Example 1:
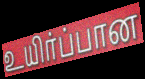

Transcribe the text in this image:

உயிர்ப்பான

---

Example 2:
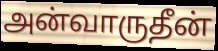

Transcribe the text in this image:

அன்வாருதீன்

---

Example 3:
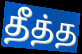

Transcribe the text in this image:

தீத்த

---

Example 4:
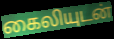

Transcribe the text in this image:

கைலியுடன்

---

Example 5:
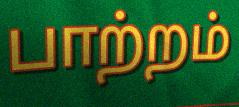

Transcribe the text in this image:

பாற்றம்